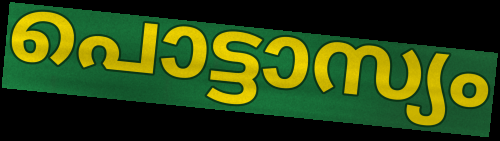
പൊട്ടാസ്യം